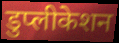
डुप्लीकेशन